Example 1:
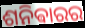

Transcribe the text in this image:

ଶନିଵାରର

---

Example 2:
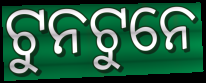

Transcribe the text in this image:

ଟୁନଟୁନେ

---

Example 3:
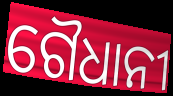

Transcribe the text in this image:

ଗୈଧାନୀ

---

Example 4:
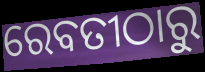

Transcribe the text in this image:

ରେବତୀଠାରୁ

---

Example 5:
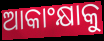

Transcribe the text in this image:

ଆକାଂକ୍ଷାକୁ